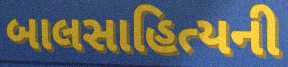
બાલસાહિત્યની